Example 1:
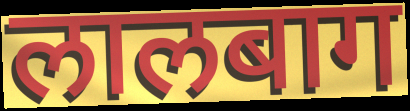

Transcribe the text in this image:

लालबाग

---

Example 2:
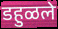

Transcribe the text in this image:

डहुळले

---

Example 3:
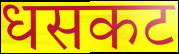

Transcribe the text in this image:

धसकट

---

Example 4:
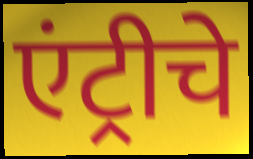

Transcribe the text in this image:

एंट्रीचे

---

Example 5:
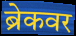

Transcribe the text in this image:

ब्रेकवर